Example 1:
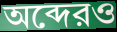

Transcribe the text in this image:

অব্দেরও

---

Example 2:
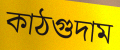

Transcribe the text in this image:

কাঠগুদাম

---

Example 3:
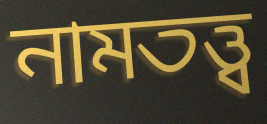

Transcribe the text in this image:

নামতত্ত্ব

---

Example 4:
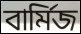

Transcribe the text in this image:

বার্মিজ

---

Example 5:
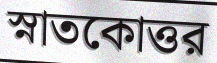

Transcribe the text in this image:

স্নাতকোত্তর